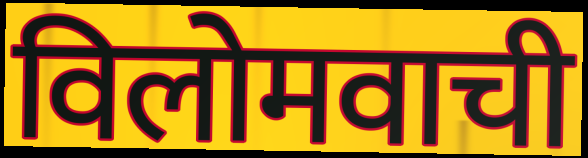
विलोमवाची